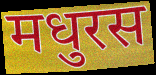
मधुरस